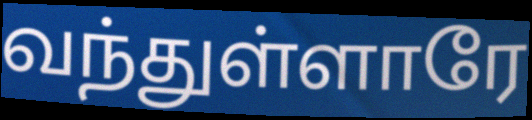
வந்துள்ளாரே